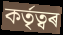
কৰ্তৃত্বৰ